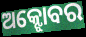
ଅକ୍ଝୋବର